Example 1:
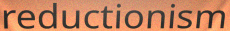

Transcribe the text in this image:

reductionism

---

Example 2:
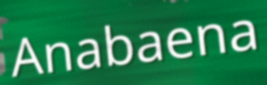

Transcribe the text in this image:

Anabaena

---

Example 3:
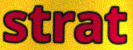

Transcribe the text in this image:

strat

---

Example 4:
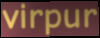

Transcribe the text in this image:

virpur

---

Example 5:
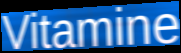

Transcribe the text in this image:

Vitamine